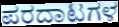
ಪರದಾಟಗಳ